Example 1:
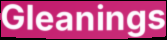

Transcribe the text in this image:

Gleanings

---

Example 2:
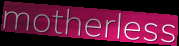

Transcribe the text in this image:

motherless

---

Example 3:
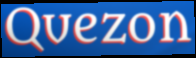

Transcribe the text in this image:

Quezon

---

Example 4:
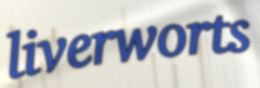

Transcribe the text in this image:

liverworts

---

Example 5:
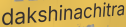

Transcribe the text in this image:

dakshinachitra